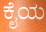
ಕೈಯ